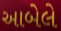
આબેલે